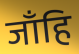
जाँहि